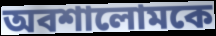
অবশালোমকে